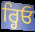
ਰ੍ਹਿਓ